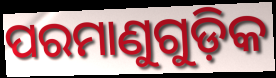
ପରମାଣୁଗୁଡ଼ିକ